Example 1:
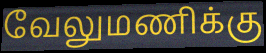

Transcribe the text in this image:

வேலுமணிக்கு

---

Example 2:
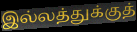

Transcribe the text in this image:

இல்லத்துக்குத்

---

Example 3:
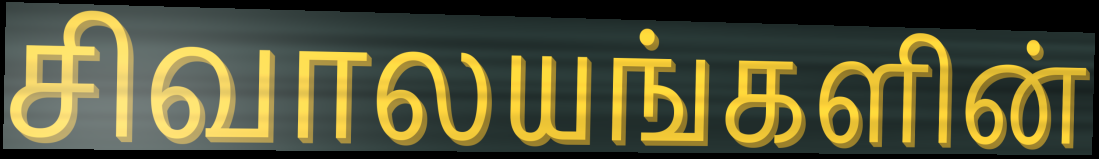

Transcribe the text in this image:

சிவாலயங்களின்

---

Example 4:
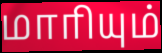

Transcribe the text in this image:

மாரியும்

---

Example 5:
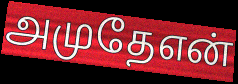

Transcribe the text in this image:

அமுதேஎன்